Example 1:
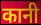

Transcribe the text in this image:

कानी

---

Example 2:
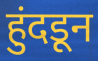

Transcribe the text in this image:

हुंदडून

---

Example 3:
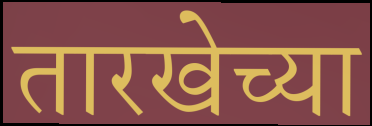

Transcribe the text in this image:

तारखेच्या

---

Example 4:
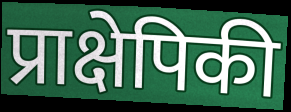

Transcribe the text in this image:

प्राक्षेपिकी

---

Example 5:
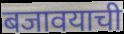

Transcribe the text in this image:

बजावयाची